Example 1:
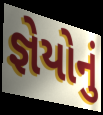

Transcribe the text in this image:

જ્ઞેયોનું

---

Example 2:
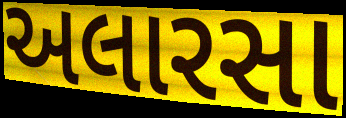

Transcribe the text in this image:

અલારસા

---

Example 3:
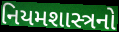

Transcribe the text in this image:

નિયમશાસ્ત્રનો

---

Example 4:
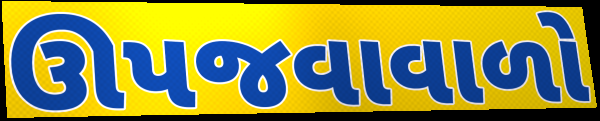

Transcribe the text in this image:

ઊપજવાવાળો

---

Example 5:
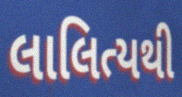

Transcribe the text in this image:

લાલિત્યથી